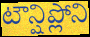
టౌన్షిప్లోని